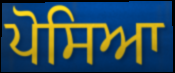
ਪੋਸਿਆ